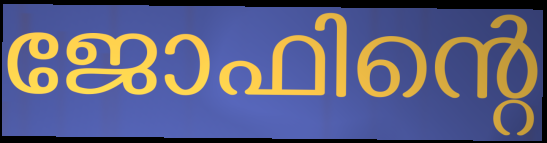
ജോഫിന്റെ